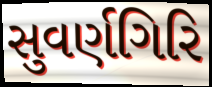
સુવર્ણગિરિ